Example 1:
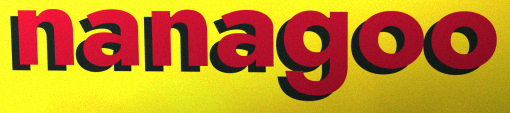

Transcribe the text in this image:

nanagoo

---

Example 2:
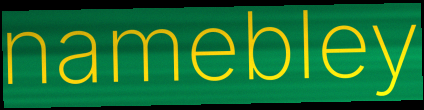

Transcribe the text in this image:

namebley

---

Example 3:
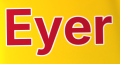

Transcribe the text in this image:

Eyer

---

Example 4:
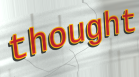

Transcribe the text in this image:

thought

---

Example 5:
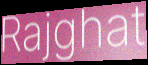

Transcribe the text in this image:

Rajghat